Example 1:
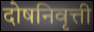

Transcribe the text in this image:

दोषनिवृत्ती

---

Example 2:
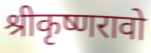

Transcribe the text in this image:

श्रीकृष्णरावो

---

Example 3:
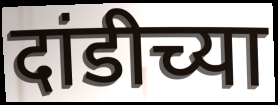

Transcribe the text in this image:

दांडीच्या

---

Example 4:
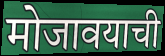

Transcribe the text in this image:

मोजावयाची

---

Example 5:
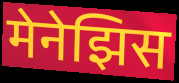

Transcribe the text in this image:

मेनेझिस